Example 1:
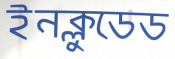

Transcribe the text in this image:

ইনক্লুডেড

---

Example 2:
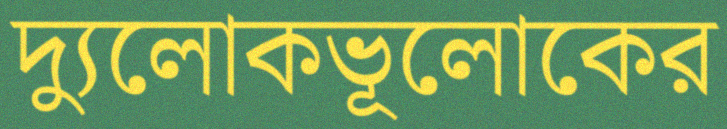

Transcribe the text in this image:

দ্যুলোকভূলোকের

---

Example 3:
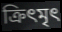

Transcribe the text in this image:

ক্রিৎমৃৎ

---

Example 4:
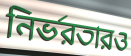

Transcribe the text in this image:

নির্ভরতারও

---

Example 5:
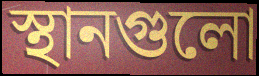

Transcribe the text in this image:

স্থানগুলো